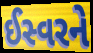
ઈસ્વરને